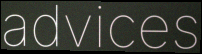
advices